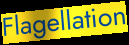
Flagellation